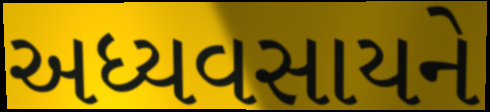
અધ્યવસાયને